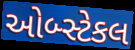
ઓબ્સ્ટેકલ